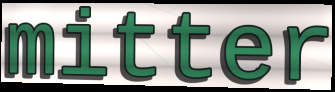
mitter